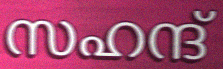
സഹന്ദ്